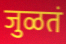
जुळतं